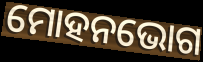
ମୋହନଭୋଗ